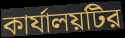
কার্যালয়টির